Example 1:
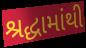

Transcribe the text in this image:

શ્રદ્ધામાંથી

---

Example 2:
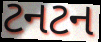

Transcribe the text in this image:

ટનટન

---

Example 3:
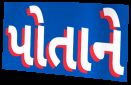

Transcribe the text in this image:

પોતાને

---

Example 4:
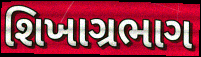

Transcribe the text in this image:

શિખાગ્રભાગ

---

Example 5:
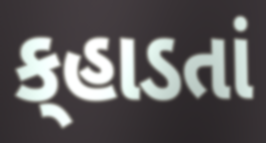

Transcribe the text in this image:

ક્‌હાડતાં